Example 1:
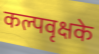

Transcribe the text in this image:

कल्पवृक्षके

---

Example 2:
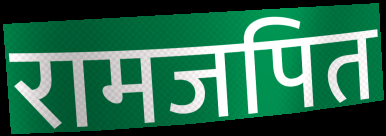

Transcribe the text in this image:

रामजपित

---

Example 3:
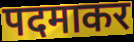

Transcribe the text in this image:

पदमाकर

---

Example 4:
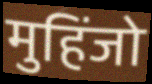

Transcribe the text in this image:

मुहिंजो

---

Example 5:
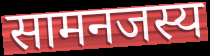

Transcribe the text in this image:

सामनजस्य